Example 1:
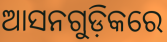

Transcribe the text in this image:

ଆସନଗୁଡ଼ିକରେ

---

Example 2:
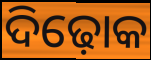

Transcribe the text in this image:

ଦିଢ଼ୋକ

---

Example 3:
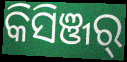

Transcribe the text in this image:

କିସିଞ୍ଜର୍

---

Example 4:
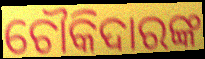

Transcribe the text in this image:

ଚୌକିଦାରଙ୍କ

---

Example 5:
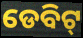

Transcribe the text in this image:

ଡେବିଟ୍